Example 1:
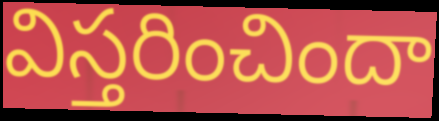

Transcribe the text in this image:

విస్తరించిందా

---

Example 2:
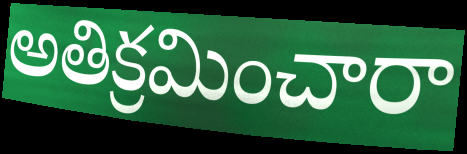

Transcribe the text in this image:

అతిక్రమించారా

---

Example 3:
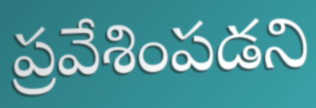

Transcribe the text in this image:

ప్రవేశింపడని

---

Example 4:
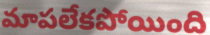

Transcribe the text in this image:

మాపలేకపోయింది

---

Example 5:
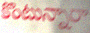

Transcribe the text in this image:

కొంటున్నారా